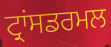
ਟ੍ਰਾਂਸਡਰਮਲ